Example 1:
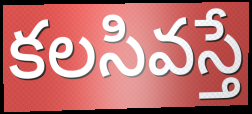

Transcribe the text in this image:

కలసివస్తే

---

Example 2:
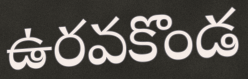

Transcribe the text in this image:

ఉరవకొండ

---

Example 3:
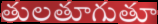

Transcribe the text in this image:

తులతూగుతూ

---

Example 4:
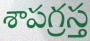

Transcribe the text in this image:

శాపగ్రస్త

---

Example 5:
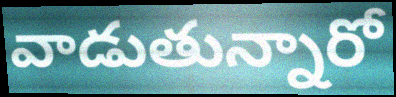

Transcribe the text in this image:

వాడుతున్నారో